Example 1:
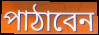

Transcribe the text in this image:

পাঠাবেন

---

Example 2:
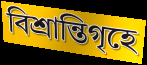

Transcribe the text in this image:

বিশ্রান্তিগৃহে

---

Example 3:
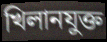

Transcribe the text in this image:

খিলানযুক্ত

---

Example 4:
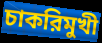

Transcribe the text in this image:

চাকরিমুখী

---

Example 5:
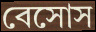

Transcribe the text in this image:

বেসোস